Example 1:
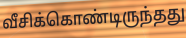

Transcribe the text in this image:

வீசிக்கொண்டிருந்தது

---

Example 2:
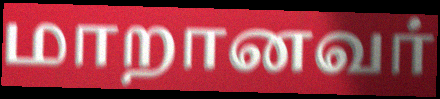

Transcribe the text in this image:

மாறானவர்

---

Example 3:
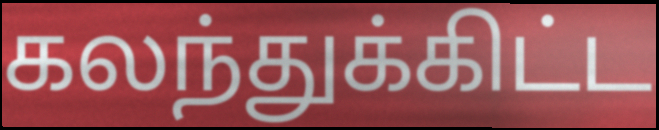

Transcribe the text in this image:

கலந்துக்கிட்ட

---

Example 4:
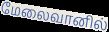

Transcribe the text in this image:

மேலைவானில்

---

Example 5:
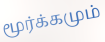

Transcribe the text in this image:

மூர்க்கமும்